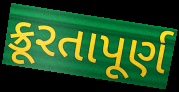
ક્રૂરતાપૂર્ણ